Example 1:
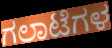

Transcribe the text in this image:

ಗಲಾಟೆಗಳ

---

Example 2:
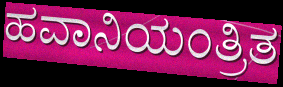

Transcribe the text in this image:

ಹವಾನಿಯಂತ್ರಿತ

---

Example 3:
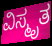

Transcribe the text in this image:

ವಿಸ್ಮೃತ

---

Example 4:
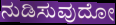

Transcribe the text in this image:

ನುಡಿಸುವುದೋ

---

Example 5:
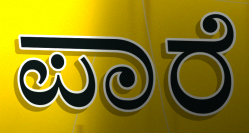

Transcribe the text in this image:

ಪಾರೆ